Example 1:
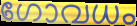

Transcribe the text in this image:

ഗോവധം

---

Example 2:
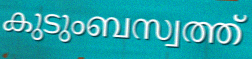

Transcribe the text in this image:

കുടുംബസ്വത്ത്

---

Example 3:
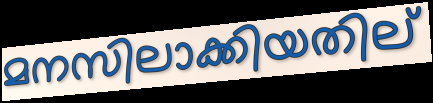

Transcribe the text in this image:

മനസിലാക്കിയതില്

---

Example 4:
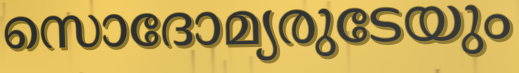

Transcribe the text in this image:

സൊദോമ്യരുടേയും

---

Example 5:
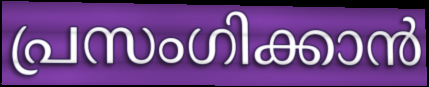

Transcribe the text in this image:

പ്രസംഗിക്കാൻ